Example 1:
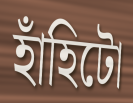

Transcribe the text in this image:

হাঁহিটো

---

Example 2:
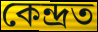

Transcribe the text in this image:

কেন্দ্ৰত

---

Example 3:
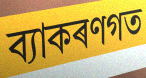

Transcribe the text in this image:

ব্যাকৰণগত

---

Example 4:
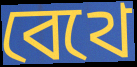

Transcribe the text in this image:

বেথে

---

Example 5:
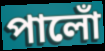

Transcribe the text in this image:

পালোঁ